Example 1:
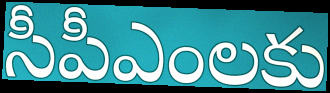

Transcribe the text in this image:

సీపీఎంలకు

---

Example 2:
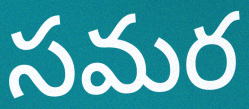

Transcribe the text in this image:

సమర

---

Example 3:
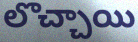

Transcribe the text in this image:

లొచ్చాయి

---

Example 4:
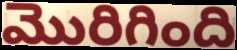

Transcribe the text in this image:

మొరిగింది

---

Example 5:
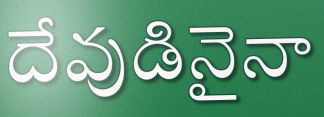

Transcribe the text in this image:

దేవుడినైనా